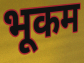
भूकम